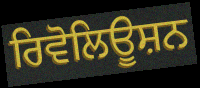
ਰਿਵੋਲਿਊਸ਼ਨ